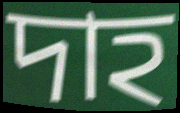
দাহ